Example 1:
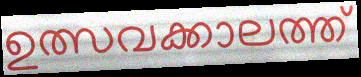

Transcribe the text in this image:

ഉത്സവക്കാലത്ത്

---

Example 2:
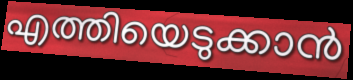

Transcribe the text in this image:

എത്തിയെടുക്കാൻ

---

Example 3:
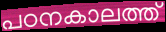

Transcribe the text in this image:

പഠനകാലത്ത്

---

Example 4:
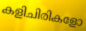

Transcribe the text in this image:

കളിചിരികളോ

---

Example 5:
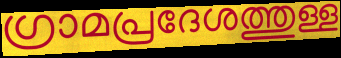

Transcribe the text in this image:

ഗ്രാമപ്രദേശത്തുള്ള